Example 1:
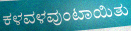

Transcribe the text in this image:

ಕಳವಳವುಂಟಾಯಿತು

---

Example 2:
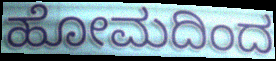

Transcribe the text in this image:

ಹೋಮದಿಂದ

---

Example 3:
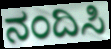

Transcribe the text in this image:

ನಂದಿಸಿ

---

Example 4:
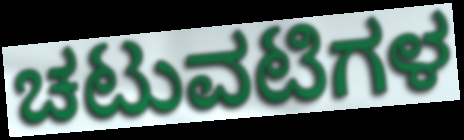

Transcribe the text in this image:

ಚಟುವಟಿಗಳ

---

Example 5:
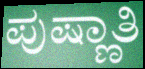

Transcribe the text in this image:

ಪುಷ್ಣಾತಿ